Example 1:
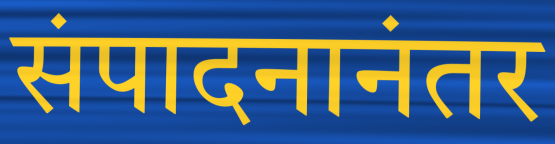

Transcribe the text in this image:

संपादनानंतर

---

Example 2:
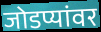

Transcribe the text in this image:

जोडप्यांवर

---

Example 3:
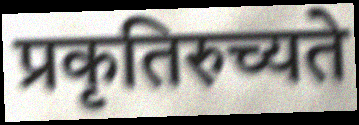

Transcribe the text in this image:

प्रकृतिरुच्यते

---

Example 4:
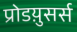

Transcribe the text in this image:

प्रोडय़ुसर्स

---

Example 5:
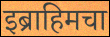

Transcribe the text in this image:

इब्राहिमचा